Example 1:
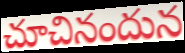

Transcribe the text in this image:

చూచినందున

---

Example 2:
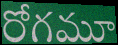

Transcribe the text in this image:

రోగమూ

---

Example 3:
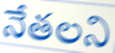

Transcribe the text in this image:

నేతలని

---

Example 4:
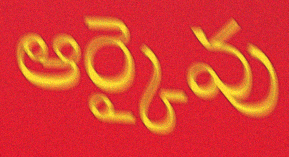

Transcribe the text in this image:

ఆర్కైవు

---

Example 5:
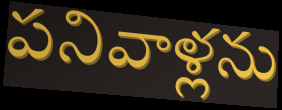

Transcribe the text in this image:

పనివాళ్లను